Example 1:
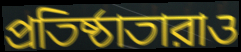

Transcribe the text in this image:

প্রতিষ্ঠাতারাও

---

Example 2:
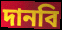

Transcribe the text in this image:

দানবি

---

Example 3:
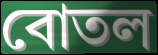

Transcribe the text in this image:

বোতল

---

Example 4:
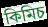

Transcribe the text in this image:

কিমিচ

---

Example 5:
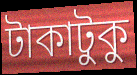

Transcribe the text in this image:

টাকাটুকু